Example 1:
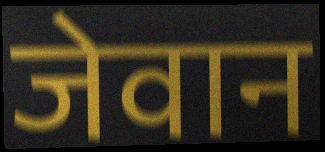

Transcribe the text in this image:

जेवान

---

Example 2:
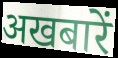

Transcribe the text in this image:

अखबारें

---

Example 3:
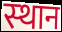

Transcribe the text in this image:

स्‍थान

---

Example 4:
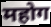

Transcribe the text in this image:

महोग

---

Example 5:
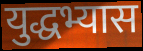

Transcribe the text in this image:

युद्धभ्यास